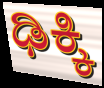
ಢಿಕ್ಕಿ